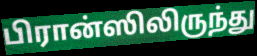
பிரான்ஸிலிருந்து